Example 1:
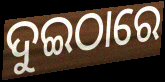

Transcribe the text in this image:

ଦୁଇଠାରେ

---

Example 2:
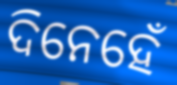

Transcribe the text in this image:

ଦିନେହେଁ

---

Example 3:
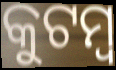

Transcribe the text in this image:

କୁଟମ୍ୱ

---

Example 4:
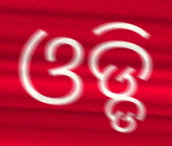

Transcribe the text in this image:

ଓଡ୍ଡି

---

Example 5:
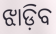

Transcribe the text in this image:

ଝାଡ଼ିବ